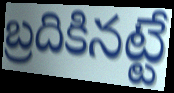
బ్రదికినట్టే